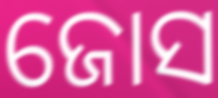
ଜୋସ